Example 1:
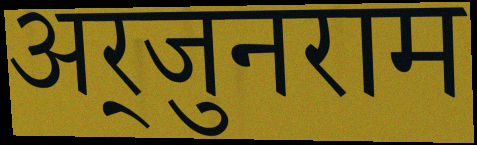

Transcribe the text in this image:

अर्जुनराम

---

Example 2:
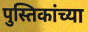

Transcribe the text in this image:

पुस्तिकांच्या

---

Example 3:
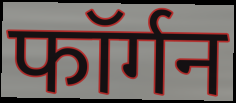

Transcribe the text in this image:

फॉर्गन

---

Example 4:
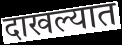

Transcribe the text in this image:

दाखल्यात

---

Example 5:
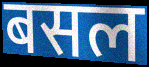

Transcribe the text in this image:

बसल